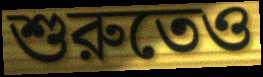
শুরুতেও